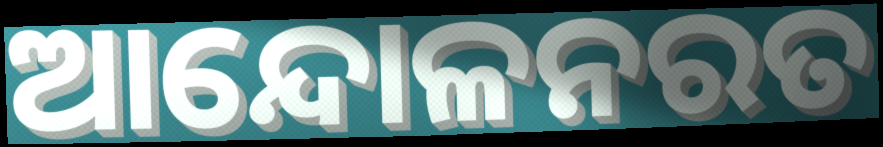
ଆନ୍ଦୋଳନରତ